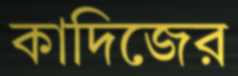
কাদিজের